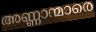
അണ്ണാന്മാരെ